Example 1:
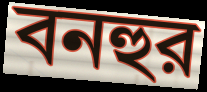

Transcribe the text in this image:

বনহুর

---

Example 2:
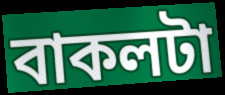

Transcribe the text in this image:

বাকলটা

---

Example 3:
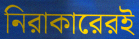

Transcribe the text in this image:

নিরাকারেরই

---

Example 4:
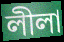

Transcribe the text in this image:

লীলা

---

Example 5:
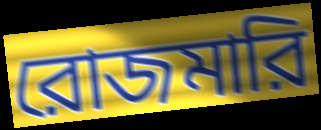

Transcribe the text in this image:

রোজমারি